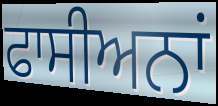
ਫਾਸੀਅਨਾਂ